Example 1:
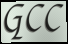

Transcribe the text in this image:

GCC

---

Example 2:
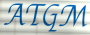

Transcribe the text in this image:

ATGM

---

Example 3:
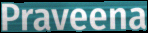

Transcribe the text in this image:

Praveena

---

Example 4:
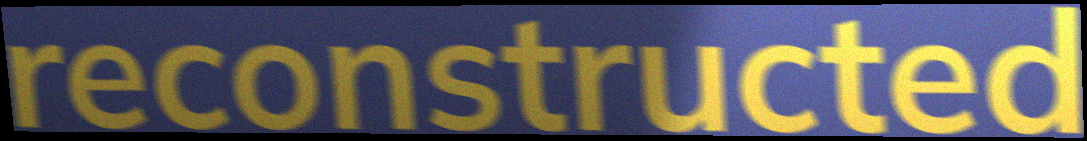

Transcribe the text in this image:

reconstructed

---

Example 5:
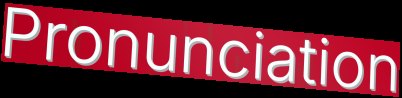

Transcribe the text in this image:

Pronunciation